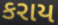
કરાય